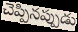
చెప్పినప్పుడు